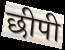
छीपी